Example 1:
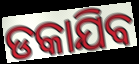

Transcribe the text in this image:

ଡକାଯିବ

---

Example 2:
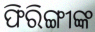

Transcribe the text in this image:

ଫିରିଙ୍ଗୀଙ୍କ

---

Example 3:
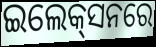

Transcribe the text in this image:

ଇଲେକ୍‍ସନରେ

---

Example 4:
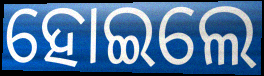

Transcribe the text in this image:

ହୋଇଲେ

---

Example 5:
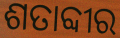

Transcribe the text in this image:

ଶତାବ୍ଦୀର